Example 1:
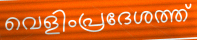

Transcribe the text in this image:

വെളിംപ്രദേശത്ത്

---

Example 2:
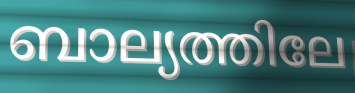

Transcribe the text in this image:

ബാല്യത്തിലേ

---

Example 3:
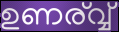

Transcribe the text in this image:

ഉണര്വ്വ്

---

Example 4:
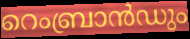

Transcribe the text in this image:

റെംബ്രാൻഡും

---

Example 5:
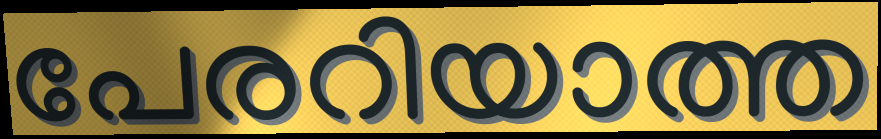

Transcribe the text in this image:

പേരറിയാത്ത